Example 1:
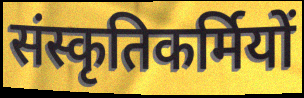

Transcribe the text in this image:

संस्कृतिकर्मियों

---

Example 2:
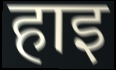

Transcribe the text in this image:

हाइ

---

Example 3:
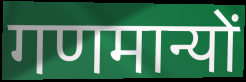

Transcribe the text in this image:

गणमान्यों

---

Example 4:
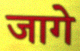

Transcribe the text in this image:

जागे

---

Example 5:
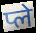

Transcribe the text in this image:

प्ले